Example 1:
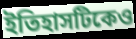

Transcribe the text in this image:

ইতিহাসটিকেও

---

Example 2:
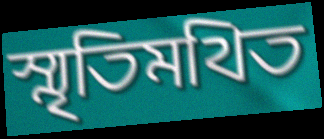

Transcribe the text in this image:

স্মৃতিমথিত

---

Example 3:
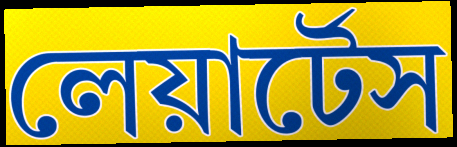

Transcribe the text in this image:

লেয়ার্টেস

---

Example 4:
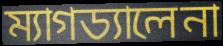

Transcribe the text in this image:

ম্যাগড্যালেনা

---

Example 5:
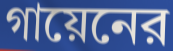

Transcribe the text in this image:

গায়েনের